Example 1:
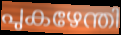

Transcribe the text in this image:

പുകഴേന്തി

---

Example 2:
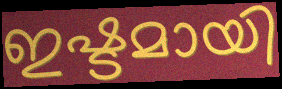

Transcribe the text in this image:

ഇഷ്ടമായി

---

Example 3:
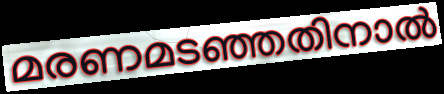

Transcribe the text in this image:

മരണമടഞ്ഞതിനാൽ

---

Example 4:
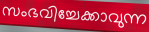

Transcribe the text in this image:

സംഭവിച്ചേക്കാവുന്ന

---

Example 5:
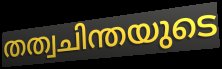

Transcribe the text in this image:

തത്വചിന്തയുടെ